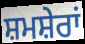
ਸ਼ਮਸ਼ੇਰਾਂ